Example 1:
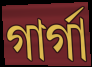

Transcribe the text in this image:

গার্গা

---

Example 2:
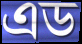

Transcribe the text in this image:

এড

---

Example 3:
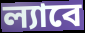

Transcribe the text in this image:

ল্যাবে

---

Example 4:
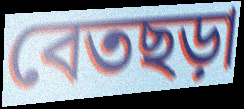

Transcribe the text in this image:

বেতছড়া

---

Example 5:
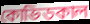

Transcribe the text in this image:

কোভিডকাল